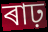
ৰাঢ়